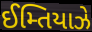
ઈમ્તિયાઝે